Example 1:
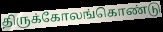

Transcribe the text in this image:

திருக்கோலங்கொண்டு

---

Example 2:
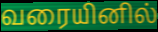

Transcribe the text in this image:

வரையினில்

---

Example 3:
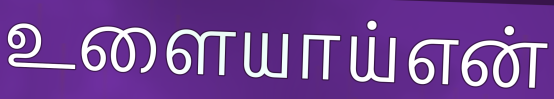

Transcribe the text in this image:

உளையாய்என்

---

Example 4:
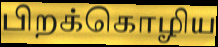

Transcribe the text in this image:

பிறக்கொழிய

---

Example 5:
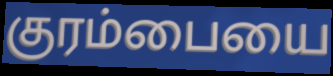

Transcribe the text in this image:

குரம்பையை